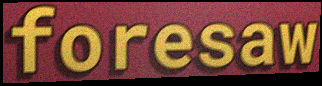
foresaw